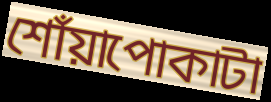
শোঁয়াপোকাটা